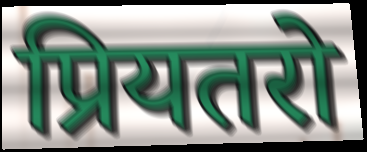
प्रियतरो